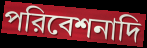
পরিবেশনাদি